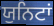
ਯੁਨਿਟਾਂ